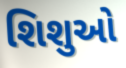
શિશુઓ